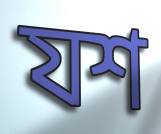
যশ